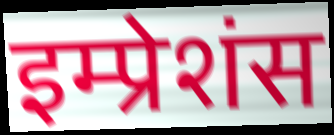
इम्प्रेशंस